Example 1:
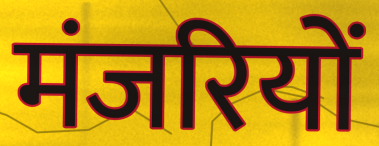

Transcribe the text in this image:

मंजरियों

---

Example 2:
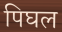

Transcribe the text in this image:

पिघल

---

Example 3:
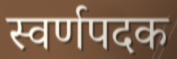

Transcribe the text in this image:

स्वर्णपदक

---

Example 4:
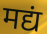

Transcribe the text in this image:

मद्यं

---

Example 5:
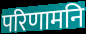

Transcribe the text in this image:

परिणामनि